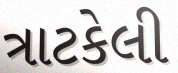
ત્રાટકેલી